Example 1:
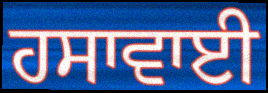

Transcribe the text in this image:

ਹਸਾਵਾਈ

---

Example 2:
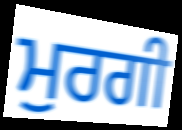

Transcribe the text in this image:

ਮੁਰਗੀ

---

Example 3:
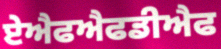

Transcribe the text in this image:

ਏਐਫਐਫਡੀਐਫ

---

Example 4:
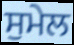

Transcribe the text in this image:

ਸੁਮੇਲ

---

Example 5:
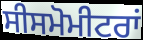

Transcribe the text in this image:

ਸੀਸਮੋਮੀਟਰਾਂ